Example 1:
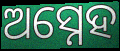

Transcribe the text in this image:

ଅସ୍ନେହ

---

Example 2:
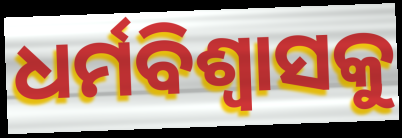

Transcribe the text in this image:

ଧର୍ମବିଶ୍ୱାସକୁ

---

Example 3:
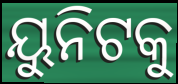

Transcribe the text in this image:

ୟୁନିଟକୁ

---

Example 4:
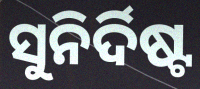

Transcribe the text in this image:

ସୁନିର୍ଦିଷ୍ଟ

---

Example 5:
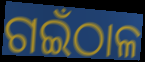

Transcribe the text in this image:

ଗଇଁଠାଳ